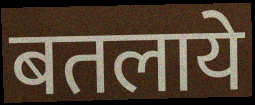
बतलाये